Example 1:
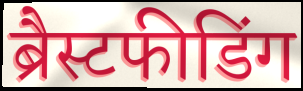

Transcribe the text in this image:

ब्रैस्टफीडिंग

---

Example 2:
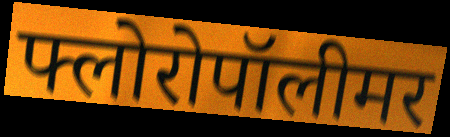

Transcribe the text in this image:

फ्लोरोपॉलीमर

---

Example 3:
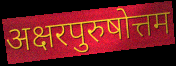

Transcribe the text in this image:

अक्षरपुरुषोत्तम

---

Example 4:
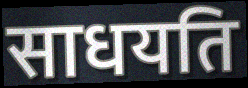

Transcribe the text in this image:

साधयति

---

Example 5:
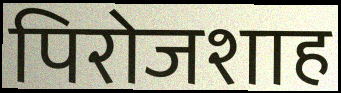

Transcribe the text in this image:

पिरोजशाह